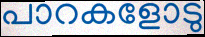
പാറകളോടു